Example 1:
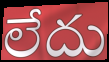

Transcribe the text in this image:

లేదు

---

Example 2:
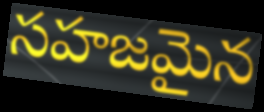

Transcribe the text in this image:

సహజమైన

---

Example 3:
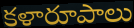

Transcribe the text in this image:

కళారూపాలు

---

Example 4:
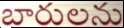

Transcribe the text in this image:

బారులను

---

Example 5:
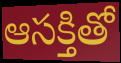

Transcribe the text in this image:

ఆసక్తితో